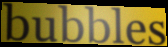
bubbles